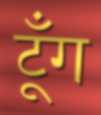
टूँग